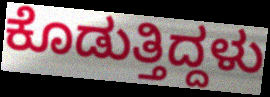
ಕೊಡುತ್ತಿದ್ದಳು